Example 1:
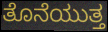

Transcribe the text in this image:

ತೊನೆಯುತ್ತ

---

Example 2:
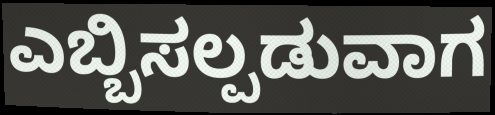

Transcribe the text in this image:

ಎಬ್ಬಿಸಲ್ಪಡುವಾಗ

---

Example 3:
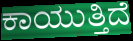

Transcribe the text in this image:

ಕಾಯುತ್ತಿದೆ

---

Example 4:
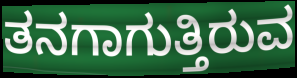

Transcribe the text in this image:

ತನಗಾಗುತ್ತಿರುವ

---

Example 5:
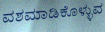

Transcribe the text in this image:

ವಶಮಾಡಿಕೊಳ್ಳುವ